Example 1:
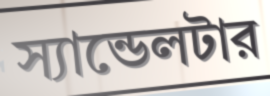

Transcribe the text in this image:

স্যান্ডেলটার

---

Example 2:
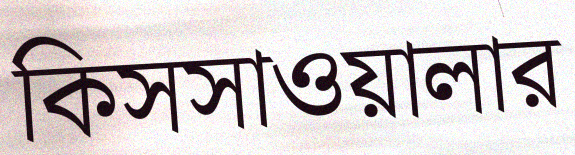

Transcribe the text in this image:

কিসসাওয়ালার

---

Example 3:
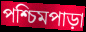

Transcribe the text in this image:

পশ্চিমপাড়া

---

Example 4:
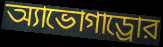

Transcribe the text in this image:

অ্যাভোগাড্রোর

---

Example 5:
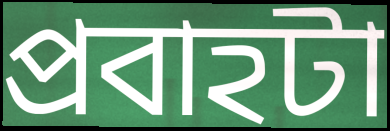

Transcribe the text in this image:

প্রবাহটা